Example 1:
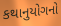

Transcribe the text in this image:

કથાનુયોગનો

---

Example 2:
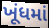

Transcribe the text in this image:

ખૂંધમાં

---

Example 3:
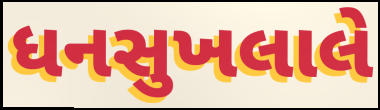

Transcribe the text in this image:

ધનસુખલાલે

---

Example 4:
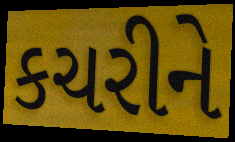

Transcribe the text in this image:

કચરીને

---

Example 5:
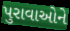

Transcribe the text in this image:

પુરાવાઓને